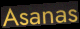
Asanas